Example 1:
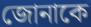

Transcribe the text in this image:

জোনাকে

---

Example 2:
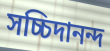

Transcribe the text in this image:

সচ্চিদানন্দ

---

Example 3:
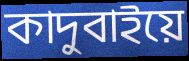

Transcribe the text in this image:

কাদুবাইয়ে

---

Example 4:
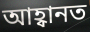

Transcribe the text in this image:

আহ্বানত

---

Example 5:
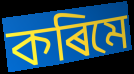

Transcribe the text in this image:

কৰিমে